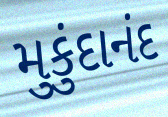
મુકુંદાનંદ